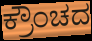
ಕ್ರೌಂಚದ